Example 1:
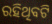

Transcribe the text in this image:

ରହିଥିବଟି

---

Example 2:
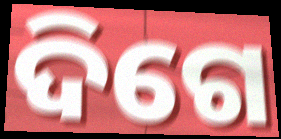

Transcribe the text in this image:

ଦିଗେ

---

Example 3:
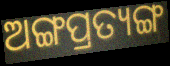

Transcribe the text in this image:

ଅଙ୍ଗପ୍ରତ୍ୟଙ୍ଗ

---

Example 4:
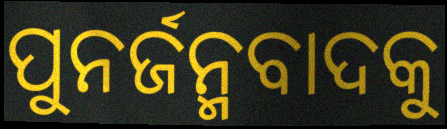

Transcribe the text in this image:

ପୁନର୍ଜନ୍ମବାଦକୁ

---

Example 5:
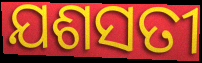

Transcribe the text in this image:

ଯଶସତୀ